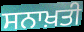
ਸਨਾਖ਼ਤੀ